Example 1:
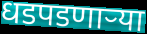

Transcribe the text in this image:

धडपडणाऱ्या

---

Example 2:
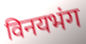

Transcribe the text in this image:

विनयभंग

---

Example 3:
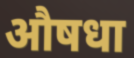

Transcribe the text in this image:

औषधा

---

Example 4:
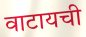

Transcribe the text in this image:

वाटायची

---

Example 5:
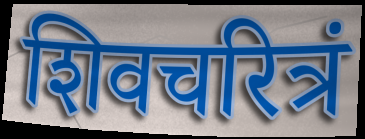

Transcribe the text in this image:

शिवचरित्रं